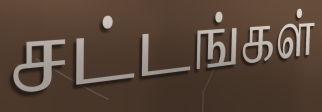
சட்டங்கள்